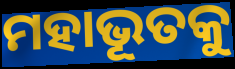
ମହାଭୂତକୁ